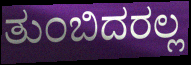
ತುಂಬಿದರಲ್ಲ